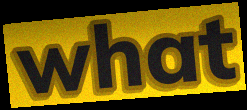
what